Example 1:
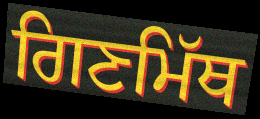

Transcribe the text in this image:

ਗਿਣਮਿੱਥ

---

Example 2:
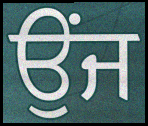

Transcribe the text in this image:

ਉੰਜ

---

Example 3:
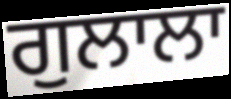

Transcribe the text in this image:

ਗੁਲਾਲਾ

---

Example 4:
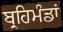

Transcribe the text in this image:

ਬ੍ਰਹਿਮੰਡਾਂ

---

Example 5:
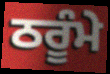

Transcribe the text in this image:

ਠਰੂੰਮੇ